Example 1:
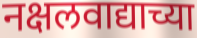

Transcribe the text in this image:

नक्षलवाद्याच्या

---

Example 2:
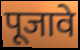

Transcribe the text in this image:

पूजावे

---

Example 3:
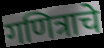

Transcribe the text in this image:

गणित्राचे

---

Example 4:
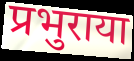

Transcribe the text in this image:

प्रभुराया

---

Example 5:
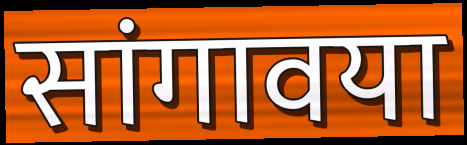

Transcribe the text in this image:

सांगावया